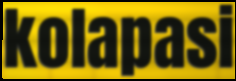
kolapasi